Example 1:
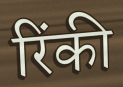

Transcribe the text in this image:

रिंकी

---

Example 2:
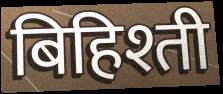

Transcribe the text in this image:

बिहिश्ती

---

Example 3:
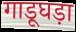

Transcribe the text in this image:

गाडूघड़ा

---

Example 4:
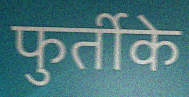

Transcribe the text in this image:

फुर्तीके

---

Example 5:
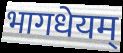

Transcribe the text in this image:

भागधेयम्